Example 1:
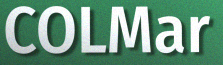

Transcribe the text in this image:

COLMar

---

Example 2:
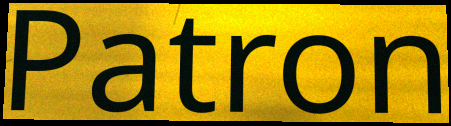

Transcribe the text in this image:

Patron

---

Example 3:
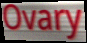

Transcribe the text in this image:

Ovary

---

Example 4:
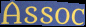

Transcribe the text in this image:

Assoc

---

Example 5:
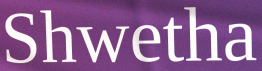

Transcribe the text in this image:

Shwetha